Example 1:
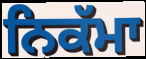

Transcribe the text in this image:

ਨਿਕੱਮਾ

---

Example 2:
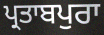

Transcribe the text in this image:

ਪ੍ਰਤਾਬਪੁਰਾ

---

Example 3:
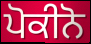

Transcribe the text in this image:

ਪੋਕੀਨੋ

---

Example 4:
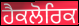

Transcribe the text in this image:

ਹੈਕਲੋਰਿਕ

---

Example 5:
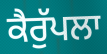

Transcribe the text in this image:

ਕੈਰੁੱਪਲਾ